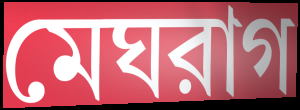
মেঘরাগ